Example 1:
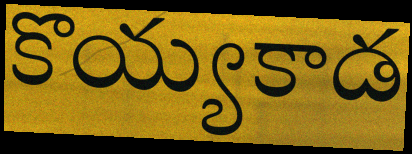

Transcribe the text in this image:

కొయ్యకాడ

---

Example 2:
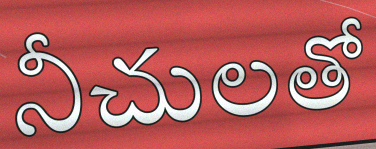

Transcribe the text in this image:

నీచులతో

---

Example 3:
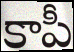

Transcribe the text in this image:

కాపీ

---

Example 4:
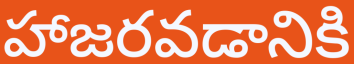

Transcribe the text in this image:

హాజరవడానికి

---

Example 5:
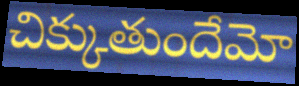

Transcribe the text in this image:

చిక్కుతుందేమో